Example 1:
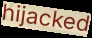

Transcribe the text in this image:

hijacked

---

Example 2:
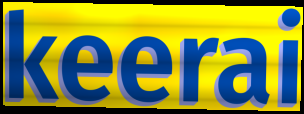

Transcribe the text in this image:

keerai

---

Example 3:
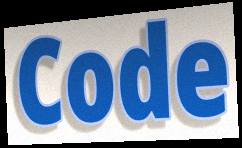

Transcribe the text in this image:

Code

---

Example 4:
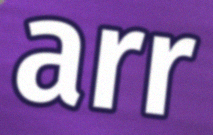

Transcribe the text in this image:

arr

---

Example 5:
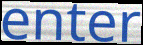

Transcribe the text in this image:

enter